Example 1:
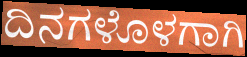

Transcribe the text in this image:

ದಿನಗಳೊಳಗಾಗಿ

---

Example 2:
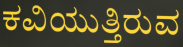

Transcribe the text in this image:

ಕವಿಯುತ್ತಿರುವ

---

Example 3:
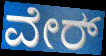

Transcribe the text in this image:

ವೇರ್‍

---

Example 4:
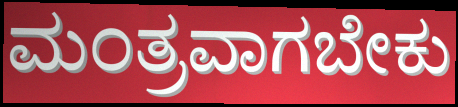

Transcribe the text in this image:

ಮಂತ್ರವಾಗಬೇಕು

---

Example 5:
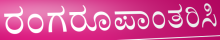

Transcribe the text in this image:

ರಂಗರೂಪಾಂತರಿಸಿ